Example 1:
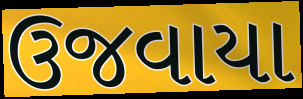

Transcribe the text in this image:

ઉજવાયા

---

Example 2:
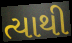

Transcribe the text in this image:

ત્યાથી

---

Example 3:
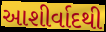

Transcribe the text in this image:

આશીર્વાદથી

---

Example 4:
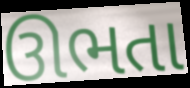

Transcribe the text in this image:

ઊભતા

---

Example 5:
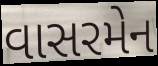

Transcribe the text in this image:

વાસરમેન